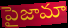
పైజామా